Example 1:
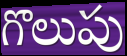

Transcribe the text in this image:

గొలుపు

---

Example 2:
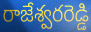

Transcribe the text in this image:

రాజేశ్వరరెడ్డి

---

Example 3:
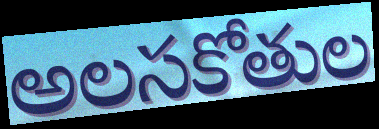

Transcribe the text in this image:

అలసకోతుల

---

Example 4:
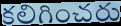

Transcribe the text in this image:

కలిగించరు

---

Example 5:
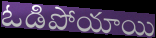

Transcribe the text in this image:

ఓడిపోయాయి